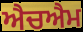
ਐਚਐਮ